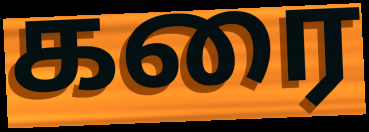
கரை